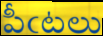
పీఁటలు